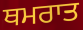
ਥਮਰਾਤ